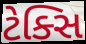
ટેક્સિ